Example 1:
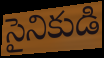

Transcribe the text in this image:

సైనికుడి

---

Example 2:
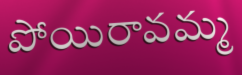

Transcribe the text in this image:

పోయిరావమ్మ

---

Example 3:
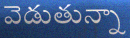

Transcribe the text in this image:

వెడుతున్నా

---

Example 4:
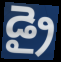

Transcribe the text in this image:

డ్రై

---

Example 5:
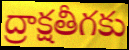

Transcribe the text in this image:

ద్రాక్షతీగకు